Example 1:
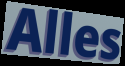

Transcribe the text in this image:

Alles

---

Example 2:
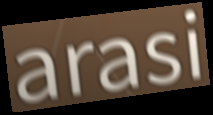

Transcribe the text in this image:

arasi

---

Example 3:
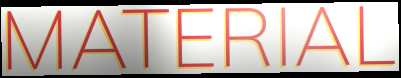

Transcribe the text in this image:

MATERIAL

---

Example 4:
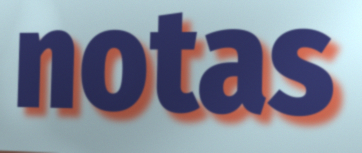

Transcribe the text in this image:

notas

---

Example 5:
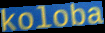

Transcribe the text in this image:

koloba